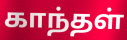
காந்தள்